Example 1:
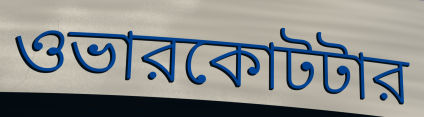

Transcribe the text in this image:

ওভারকোটটার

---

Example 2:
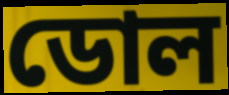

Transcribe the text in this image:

ডোল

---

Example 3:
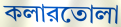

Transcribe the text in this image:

কলারতোলা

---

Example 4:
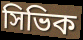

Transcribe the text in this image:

সিভিক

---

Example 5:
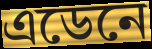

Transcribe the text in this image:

এডেনে